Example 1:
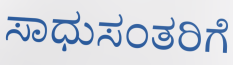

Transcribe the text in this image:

ಸಾಧುಸಂತರಿಗೆ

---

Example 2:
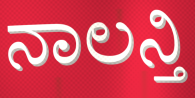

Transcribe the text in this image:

ನಾಲನ್ತಿ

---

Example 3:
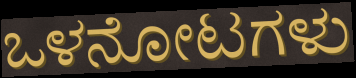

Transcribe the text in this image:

ಒಳನೋಟಗಳು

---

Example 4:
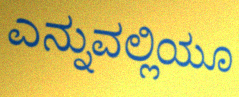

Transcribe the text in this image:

ಎನ್ನುವಲ್ಲಿಯೂ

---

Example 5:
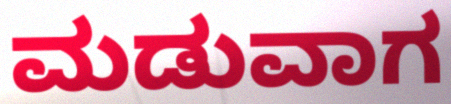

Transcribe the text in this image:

ಮಡುವಾಗ